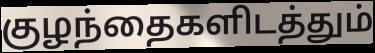
குழந்தைகளிடத்தும்